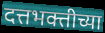
दत्तभक्तीच्या